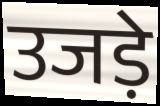
उजड़े